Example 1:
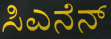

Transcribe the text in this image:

ಸಿಎನೆನ್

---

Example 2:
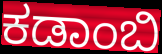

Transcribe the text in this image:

ಕಡಾಂಬಿ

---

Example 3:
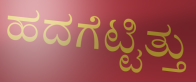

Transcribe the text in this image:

ಹದಗೆಟ್ಟಿತ್ತು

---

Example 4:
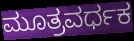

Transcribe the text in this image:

ಮೂತ್ರವರ್ಧಕ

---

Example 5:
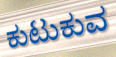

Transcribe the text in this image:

ಕುಟುಕುವ